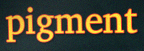
pigment